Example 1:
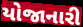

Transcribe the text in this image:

યોજાનારી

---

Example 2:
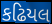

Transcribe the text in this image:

કઢિયલ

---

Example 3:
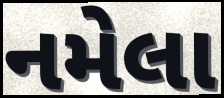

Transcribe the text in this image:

નમેલા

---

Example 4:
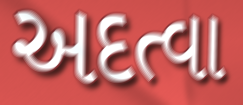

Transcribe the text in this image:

અદત્વા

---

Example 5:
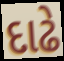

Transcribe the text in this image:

દાઢે